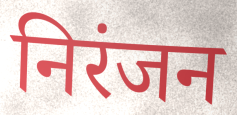
निरंजन